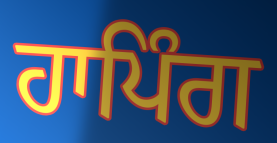
ਹਾਪਿੰਗ